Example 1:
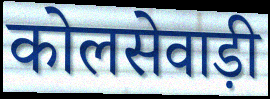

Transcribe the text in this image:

कोलसेवाड़ी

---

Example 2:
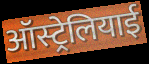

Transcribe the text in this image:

ऑस्‍ट्रेलियाई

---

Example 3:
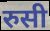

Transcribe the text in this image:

रुसी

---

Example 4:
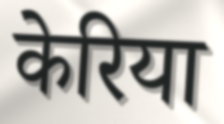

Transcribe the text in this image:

केरिया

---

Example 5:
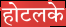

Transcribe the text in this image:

होटलके